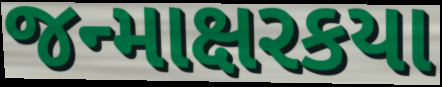
જન્માક્ષરકયા